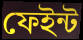
ফেইন্ট